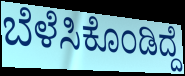
ಬೆಳೆಸಿಕೊಂಡಿದ್ದೆ